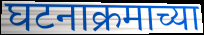
घटनाक्रमाच्या